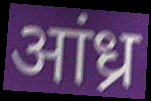
आंध्र